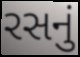
રસનું